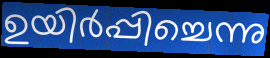
ഉയിർപ്പിച്ചെന്നു